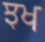
ਝਖ